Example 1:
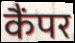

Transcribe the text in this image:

कैंपर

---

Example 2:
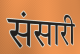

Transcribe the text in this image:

संसारी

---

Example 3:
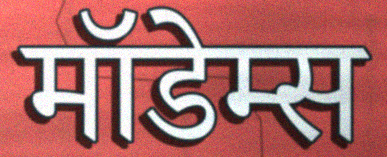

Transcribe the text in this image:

मॉडेम्स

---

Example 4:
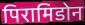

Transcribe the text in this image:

पिरामिडोन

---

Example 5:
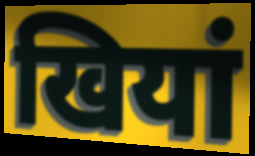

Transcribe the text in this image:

खियां